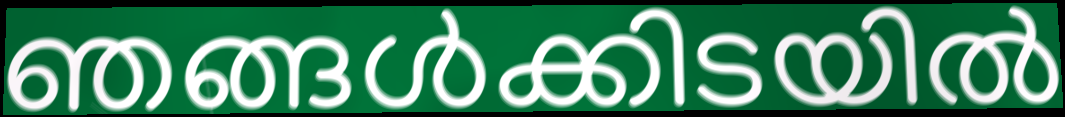
ഞങ്ങൾക്കിടയിൽ